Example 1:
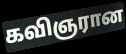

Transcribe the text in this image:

கவிஞரான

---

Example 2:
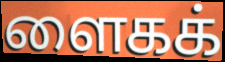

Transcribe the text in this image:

ளைகக்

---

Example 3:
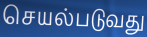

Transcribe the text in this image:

செயல்படுவது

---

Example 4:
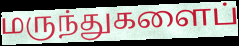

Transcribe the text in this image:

மருந்துகளைப்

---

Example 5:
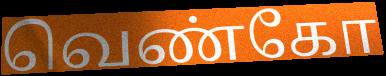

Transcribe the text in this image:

வெண்கோ